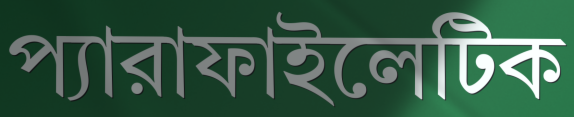
প্যারাফাইলেটিক